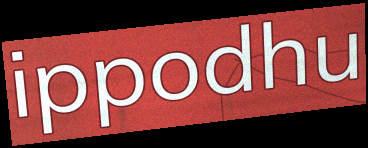
ippodhu